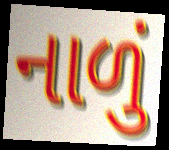
નાળું